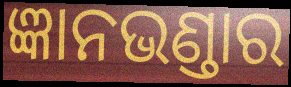
ଜ୍ଞାନଭଣ୍ଡାର